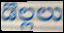
డొల్లలు